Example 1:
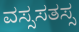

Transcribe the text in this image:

ವಸ್ಸಸತಸ್ಸ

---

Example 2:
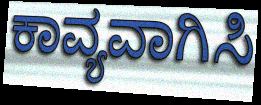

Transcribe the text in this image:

ಕಾವ್ಯವಾಗಿಸಿ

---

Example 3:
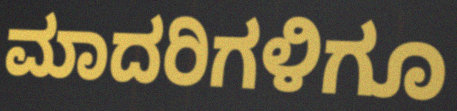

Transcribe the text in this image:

ಮಾದರಿಗಳಿಗೂ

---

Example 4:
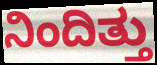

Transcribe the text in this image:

ನಿಂದಿತ್ತು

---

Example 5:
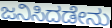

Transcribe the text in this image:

ಜನಿಸಿದಡೇನು